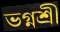
ভগ্নশ্রী